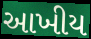
આખીય